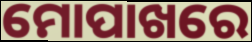
ମୋପାଖରେ